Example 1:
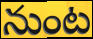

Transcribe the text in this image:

నుంట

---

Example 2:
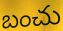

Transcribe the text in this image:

బంచు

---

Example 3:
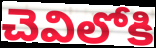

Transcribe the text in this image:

చెవిలోకి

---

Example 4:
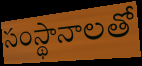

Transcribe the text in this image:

సంస్థానాలతో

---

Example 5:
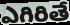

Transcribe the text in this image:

ఎగిరితే